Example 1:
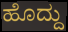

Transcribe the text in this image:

ಹೊದ್ದು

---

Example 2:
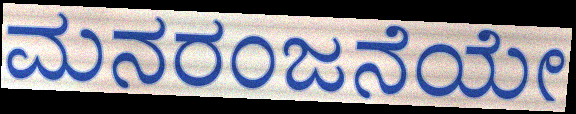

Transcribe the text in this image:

ಮನರಂಜನೆಯೇ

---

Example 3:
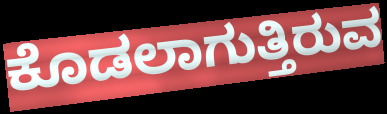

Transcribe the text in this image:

ಕೊಡಲಾಗುತ್ತಿರುವ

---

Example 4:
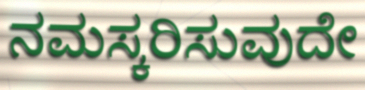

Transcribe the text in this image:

ನಮಸ್ಕರಿಸುವುದೇ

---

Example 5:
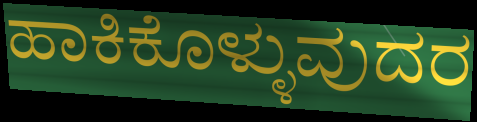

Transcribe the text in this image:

ಹಾಕಿಕೊಳ್ಳುವುದರ